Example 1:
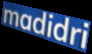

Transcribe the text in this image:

madidri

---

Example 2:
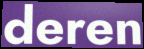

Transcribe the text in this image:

deren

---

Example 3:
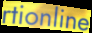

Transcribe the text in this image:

rtionline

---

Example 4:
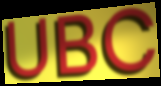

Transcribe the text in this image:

UBC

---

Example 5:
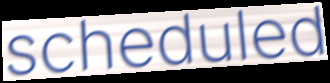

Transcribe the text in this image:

scheduled